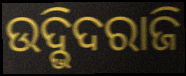
ଉଦ୍ଭିଦରାଜି